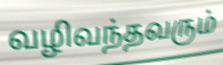
வழிவந்தவரும்